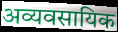
अव्यवसायिक